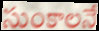
సుంకాలనే